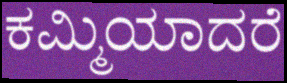
ಕಮ್ಮಿಯಾದರೆ